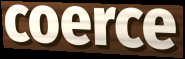
coerce